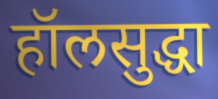
हॉलसुद्धा